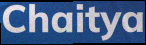
Chaitya